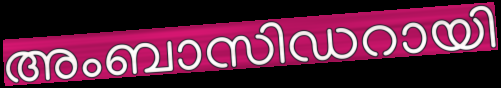
അംബാസിഡറായി